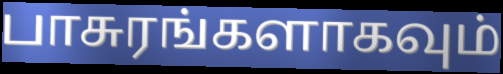
பாசுரங்களாகவும்